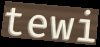
tewi